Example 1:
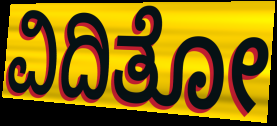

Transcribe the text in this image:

ವಿದಿತೋ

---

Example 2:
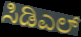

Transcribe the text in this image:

ಸಿಡಿಎಲ್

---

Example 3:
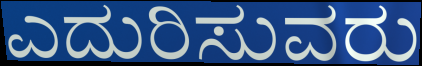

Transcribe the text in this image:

ಎದುರಿಸುವರು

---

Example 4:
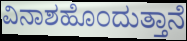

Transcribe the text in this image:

ವಿನಾಶಹೊಂದುತ್ತಾನೆ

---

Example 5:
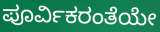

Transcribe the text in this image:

ಪೂರ್ವಿಕರಂತೆಯೇ